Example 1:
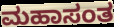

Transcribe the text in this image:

ಮಹಾಸಂತ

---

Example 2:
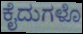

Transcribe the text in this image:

ಕೈದುಗಳೊ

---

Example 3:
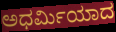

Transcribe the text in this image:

ಅಧರ್ಮಿಯಾದ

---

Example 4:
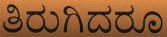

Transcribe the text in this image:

ತಿರುಗಿದರೂ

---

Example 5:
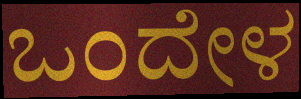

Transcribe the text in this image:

ಒಂದೇಳ